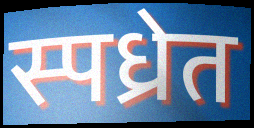
स्पध्रेत